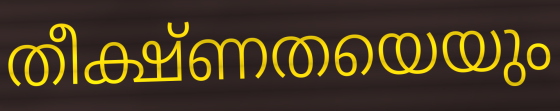
തീക്ഷ്ണതയെയും